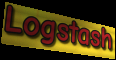
Logstash